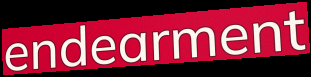
endearment